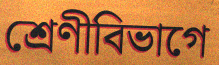
শ্রেণীবিভাগে